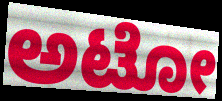
ಅಟೋ